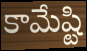
కామేష్టి